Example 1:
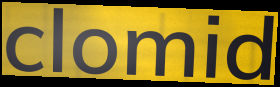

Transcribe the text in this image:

clomid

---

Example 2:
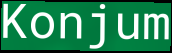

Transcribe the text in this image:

Konjum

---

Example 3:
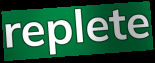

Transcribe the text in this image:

replete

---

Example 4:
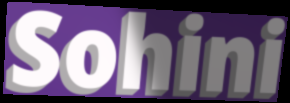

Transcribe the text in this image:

Sohini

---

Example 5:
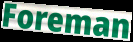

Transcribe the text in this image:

Foreman